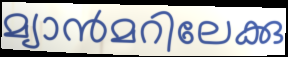
മ്യാൻമറിലേക്കു